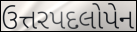
ઉત્તરપદલોપેન